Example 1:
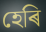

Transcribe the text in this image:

হেৰি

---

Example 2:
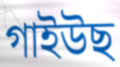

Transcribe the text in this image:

গাইউছ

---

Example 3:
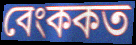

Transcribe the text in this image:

বেংককত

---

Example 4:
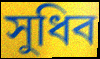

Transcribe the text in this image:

সুধিব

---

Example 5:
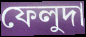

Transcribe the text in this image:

ফেলুদা